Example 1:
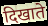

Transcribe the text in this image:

दिखाते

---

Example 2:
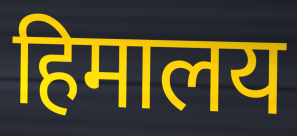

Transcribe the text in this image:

हिमालय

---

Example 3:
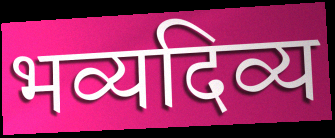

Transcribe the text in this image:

भव्यदिव्य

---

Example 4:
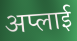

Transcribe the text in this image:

अप्लाई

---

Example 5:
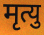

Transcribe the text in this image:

मृत्यु